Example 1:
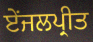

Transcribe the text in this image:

ਏਂਜਲਪ੍ਰੀਤ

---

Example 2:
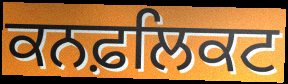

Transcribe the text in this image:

ਕਨਫ਼ਲਿਕਟ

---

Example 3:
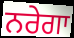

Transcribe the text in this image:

ਨਰੇਗਾ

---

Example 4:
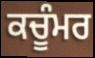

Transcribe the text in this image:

ਕਚੂੰਮਰ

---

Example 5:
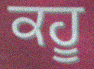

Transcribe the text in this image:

ਕਹੂ